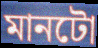
মানটো